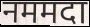
नममदा